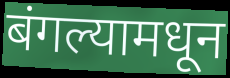
बंगल्यामधून